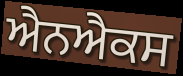
ਐਨਐਕਸ